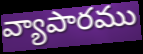
వ్యాపారము